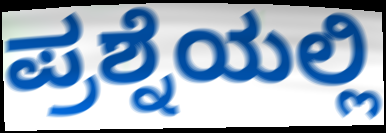
ಪ್ರಶ್ನೆಯಲ್ಲಿ